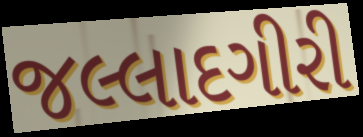
જલ્લાદગીરી